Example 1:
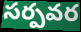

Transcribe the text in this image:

సర్పవర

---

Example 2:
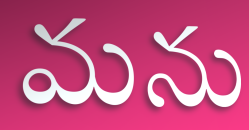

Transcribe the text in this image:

మను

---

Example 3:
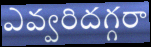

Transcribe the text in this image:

ఎవ్వరిదగ్గరా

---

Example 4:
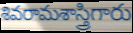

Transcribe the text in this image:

శివరామశాస్త్రిగారు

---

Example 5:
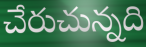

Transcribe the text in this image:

చేరుచున్నది